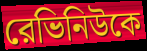
রেভিনিউকে